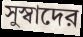
সুস্বাদের